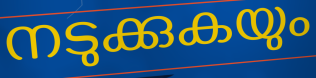
നടുക്കുകയും